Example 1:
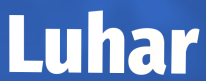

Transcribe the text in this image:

Luhar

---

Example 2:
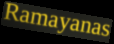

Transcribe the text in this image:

Ramayanas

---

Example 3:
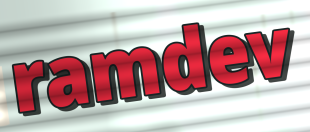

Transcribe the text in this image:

ramdev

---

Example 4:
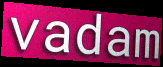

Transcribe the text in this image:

vadam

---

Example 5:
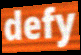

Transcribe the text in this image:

defy